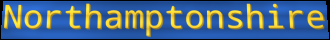
Northamptonshire